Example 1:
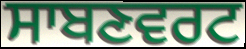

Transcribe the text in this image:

ਸਾਬਣਵਰਟ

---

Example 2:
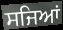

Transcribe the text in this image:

ਸਜਿਆਂ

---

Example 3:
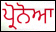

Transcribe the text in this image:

ਪ੍ਰੋਨੋਆ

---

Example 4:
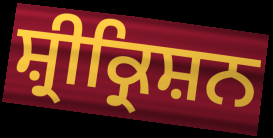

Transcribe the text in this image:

ਸ਼੍ਰੀਕ੍ਰਿਸ਼ਨ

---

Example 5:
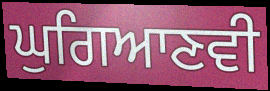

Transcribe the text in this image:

ਘੁਗਿਆਣਵੀ